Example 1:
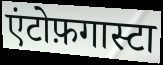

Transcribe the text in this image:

एंटोफ़गास्टा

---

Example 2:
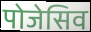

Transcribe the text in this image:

पोजेसिव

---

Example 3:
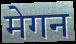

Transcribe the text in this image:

मेगन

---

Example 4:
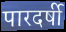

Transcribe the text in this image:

पारदर्षी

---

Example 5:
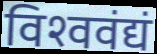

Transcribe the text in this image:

विश्ववंद्यं